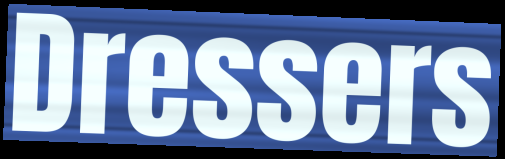
Dressers